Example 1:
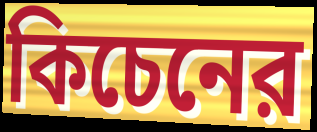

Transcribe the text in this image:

কিচেনের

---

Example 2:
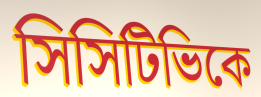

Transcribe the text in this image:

সিসিটিভিকে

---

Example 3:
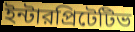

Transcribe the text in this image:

ইন্টারপ্রিটেটিভ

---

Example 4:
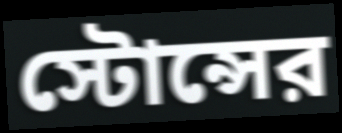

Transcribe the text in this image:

স্টোন্সের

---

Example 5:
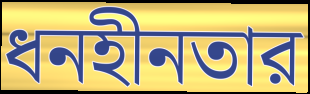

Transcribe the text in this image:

ধনহীনতার